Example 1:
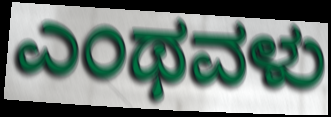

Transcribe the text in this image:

ಎಂಥವಳು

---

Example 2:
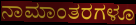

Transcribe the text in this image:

ನಾಮಾಂತರಗಳೂ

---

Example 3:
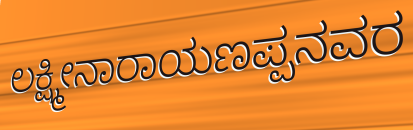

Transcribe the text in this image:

ಲಕ್ಷ್ಮೀನಾರಾಯಣಪ್ಪನವರ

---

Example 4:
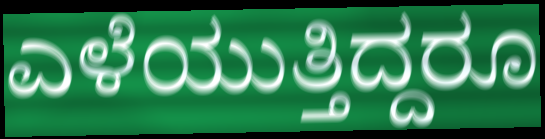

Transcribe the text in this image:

ಎಳೆಯುತ್ತಿದ್ದರೂ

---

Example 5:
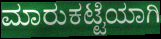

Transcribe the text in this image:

ಮಾರುಕಟ್ಟೆಯಾಗಿ